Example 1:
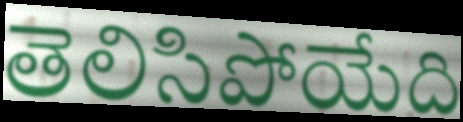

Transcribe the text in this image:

తెలిసిపోయేది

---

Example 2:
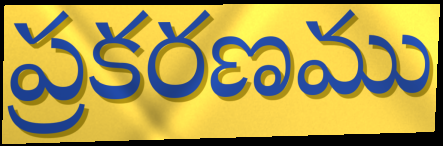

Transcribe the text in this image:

ప్రకరణము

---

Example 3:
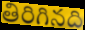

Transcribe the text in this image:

తిరిగినది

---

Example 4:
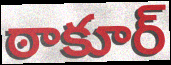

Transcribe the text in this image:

ఠాకూర్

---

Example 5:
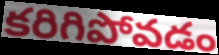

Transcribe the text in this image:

కరిగిపోవడం